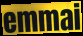
emmai